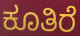
ಕೂತಿರೆ